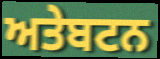
ਅਤੇਬਟਨ